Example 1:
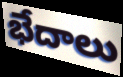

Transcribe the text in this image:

భేదాలు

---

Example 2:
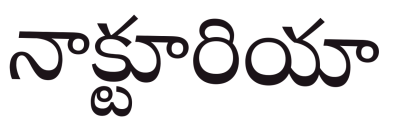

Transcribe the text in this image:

నాక్టూరియా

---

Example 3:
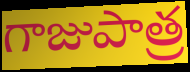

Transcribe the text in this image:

గాజుపాత్ర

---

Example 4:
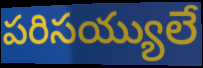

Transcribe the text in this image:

పరిసయ్యులే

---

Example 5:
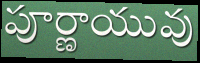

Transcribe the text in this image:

పూర్ణాయువు